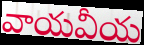
వాయవీయ